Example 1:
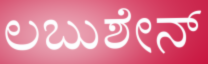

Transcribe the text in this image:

ಲಬುಶೇನ್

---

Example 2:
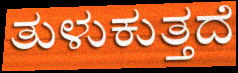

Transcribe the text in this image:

ತುಳುಕುತ್ತದೆ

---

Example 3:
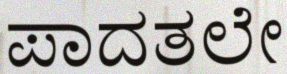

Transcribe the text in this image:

ಪಾದತಲೇ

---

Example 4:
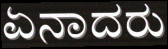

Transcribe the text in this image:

ಏನಾದರು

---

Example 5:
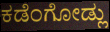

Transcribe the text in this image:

ಕಡೆಂಗೋಡ್ಲು